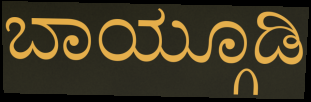
ಬಾಯ್ಗೂಡಿ